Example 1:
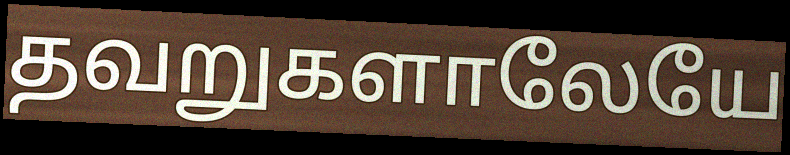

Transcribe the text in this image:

தவறுகளாலேயே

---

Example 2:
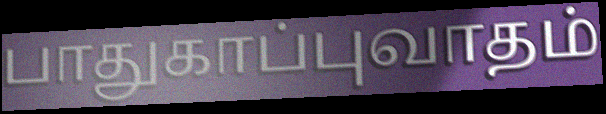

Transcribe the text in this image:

பாதுகாப்புவாதம்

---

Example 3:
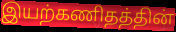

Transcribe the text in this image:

இயற்கணிதத்தின்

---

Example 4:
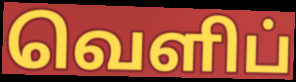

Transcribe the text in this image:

வெளிப்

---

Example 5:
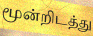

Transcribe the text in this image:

மூன்றிடத்து